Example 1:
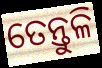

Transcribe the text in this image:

ତେନ୍ତୁଳି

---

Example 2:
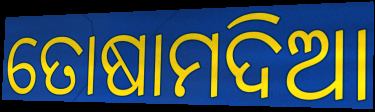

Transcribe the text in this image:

ତୋଷାମଦିଆ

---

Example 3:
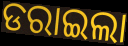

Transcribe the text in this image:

ଡରାଇଲା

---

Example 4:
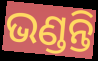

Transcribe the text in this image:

ଭଣ୍ଡନ୍ତି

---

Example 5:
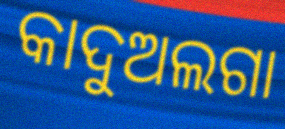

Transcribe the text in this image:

କାଦୁଅଲଗା